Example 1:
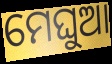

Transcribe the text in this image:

ମେଘୁଆ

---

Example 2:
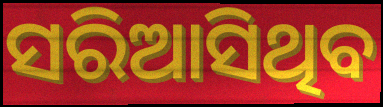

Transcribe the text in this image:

ସରିଆସିଥିବ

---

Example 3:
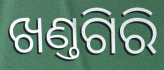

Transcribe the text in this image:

ଖଣ୍ତଗିରି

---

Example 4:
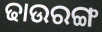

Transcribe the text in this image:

ଢାଉରଙ୍ଗ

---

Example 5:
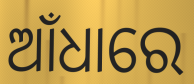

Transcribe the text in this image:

ଆଁଧାରେ